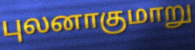
புலனாகுமாறு